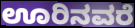
ಊರಿನವರೆ